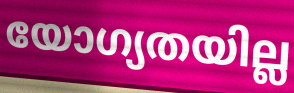
യോഗ്യതയില്ല